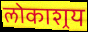
लोकाश्रय